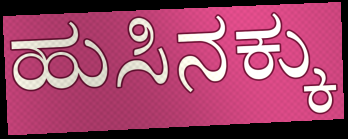
ಹುಸಿನಕ್ಕು